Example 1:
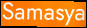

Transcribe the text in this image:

Samasya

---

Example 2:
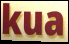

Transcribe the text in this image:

kua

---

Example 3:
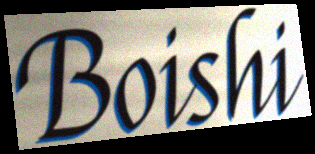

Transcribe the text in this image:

Boishi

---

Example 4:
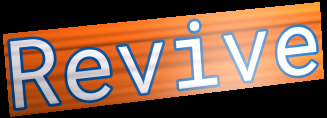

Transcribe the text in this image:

Revive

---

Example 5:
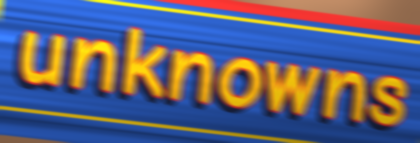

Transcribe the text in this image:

unknowns